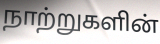
நாற்றுகளின்